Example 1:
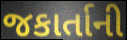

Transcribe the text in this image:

જકાર્તાની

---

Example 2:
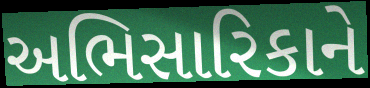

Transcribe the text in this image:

અભિસારિકાને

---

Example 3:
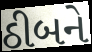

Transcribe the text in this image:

ઠીબને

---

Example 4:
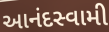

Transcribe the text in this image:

આનંદસ્વામી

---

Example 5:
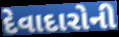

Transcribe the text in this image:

દેવાદારોની